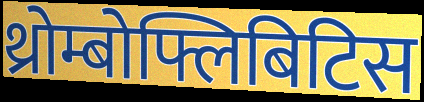
थ्रोम्बोफ्लिबिटिस